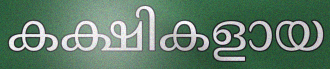
കക്ഷികളായ